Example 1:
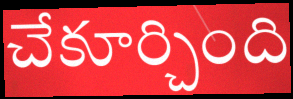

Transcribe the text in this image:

చేకూర్చింది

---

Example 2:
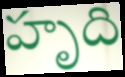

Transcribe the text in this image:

హృది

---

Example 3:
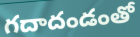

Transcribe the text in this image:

గదాదండంతో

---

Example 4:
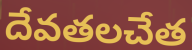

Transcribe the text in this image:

దేవతలచేత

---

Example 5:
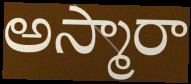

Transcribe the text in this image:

అస్మారా